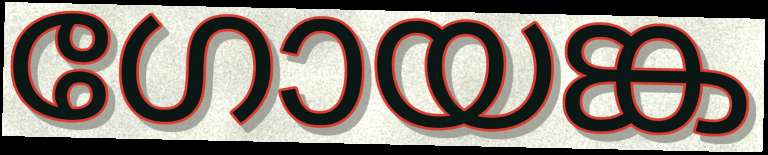
ഗോയങ്ക